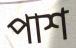
পাশ